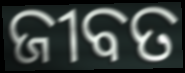
ଜୀବତ